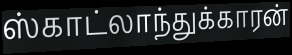
ஸ்காட்லாந்துக்காரன்